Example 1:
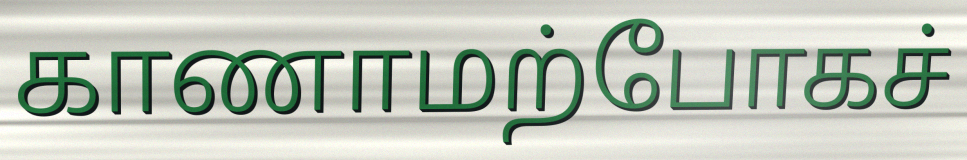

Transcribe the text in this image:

காணாமற்போகச்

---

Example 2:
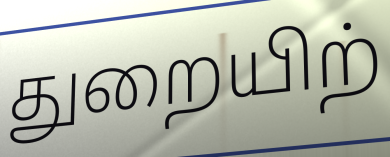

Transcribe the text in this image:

துறையிற்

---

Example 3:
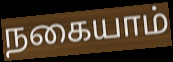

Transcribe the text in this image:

நகையாம்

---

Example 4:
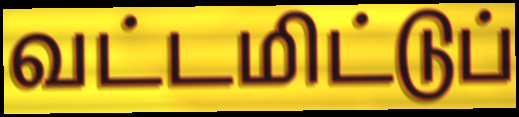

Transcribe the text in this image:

வட்டமிட்டுப்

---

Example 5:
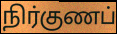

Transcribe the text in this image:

நிர்குணப்